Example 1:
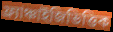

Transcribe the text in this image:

ফ্র্যাঞ্চাইজিভিত্তিক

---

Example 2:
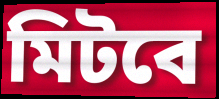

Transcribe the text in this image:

মিটবে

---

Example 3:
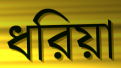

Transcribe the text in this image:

ধরিয়া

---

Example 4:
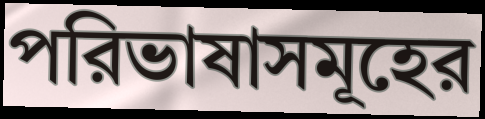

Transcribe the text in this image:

পরিভাষাসমূহের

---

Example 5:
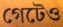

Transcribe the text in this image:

গেটেও